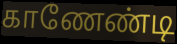
காணேண்டி